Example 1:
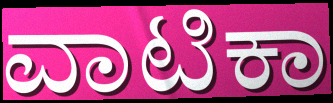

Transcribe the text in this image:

ವಾಟಿಕಾ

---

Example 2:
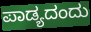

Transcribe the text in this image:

ಪಾಡ್ಯದಂದು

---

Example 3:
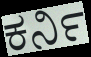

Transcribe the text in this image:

ಕರ್ನಿ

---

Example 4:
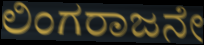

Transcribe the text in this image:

ಲಿಂಗರಾಜನೇ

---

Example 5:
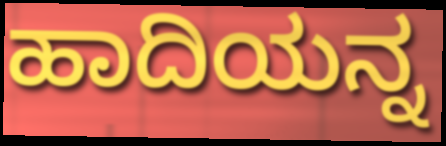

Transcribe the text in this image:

ಹಾದಿಯನ್ನ